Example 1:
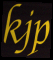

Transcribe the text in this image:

kjp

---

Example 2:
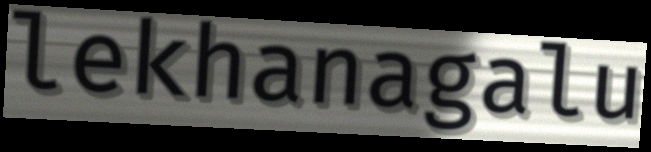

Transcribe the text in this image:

lekhanagalu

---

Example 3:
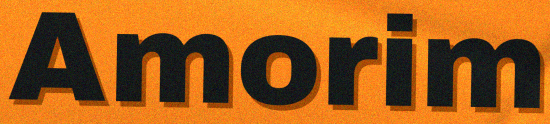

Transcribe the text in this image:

Amorim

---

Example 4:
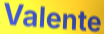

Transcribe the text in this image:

Valente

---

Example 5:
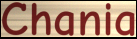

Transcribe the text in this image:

Chania